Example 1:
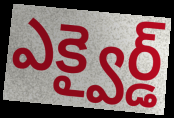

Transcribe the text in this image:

ఎక్వైర్డ్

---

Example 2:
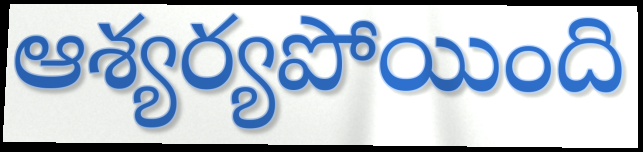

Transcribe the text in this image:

ఆశ్యర్యపోయింది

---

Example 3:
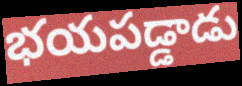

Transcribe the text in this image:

భయపడ్డాడు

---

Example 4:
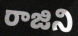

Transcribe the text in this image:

రాజిని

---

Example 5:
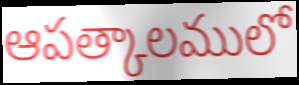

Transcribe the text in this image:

ఆపత్కాలములో